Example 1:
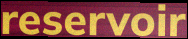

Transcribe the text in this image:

reservoir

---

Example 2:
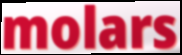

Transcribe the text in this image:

molars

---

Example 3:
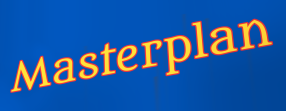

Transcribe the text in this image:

Masterplan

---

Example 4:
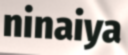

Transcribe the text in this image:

ninaiya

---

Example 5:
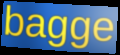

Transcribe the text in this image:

bagge